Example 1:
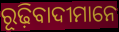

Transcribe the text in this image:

ରୂଢ଼ିବାଦୀମାନେ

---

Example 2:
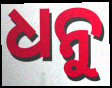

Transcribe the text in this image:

ଧନୁ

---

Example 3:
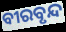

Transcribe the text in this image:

ବୀରବୃନ୍ଦ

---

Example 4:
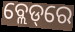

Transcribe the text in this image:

ବ୍ଲେଡ୍‌ରେ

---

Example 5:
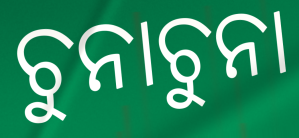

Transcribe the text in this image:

ଚୁନାଚୁନା